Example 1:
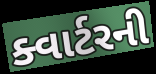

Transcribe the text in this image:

ક્વાર્ટરની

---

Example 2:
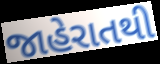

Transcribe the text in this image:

જાહેરાતથી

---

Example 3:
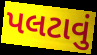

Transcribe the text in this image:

પલટાવું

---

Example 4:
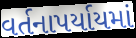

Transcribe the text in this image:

વર્તનાપર્યાયમાં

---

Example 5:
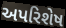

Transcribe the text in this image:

અપરિશેષ